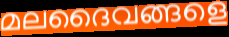
മലദൈവങ്ങളെ